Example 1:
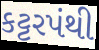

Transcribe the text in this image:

કટ્ટરપંથી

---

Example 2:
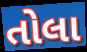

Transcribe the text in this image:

તોલા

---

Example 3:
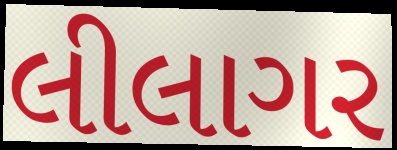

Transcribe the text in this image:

લીલાગર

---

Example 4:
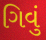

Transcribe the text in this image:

ગિવું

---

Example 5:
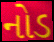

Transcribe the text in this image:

નોડ